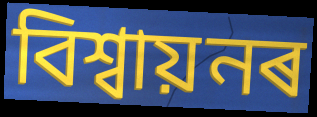
বিশ্বায়নৰ